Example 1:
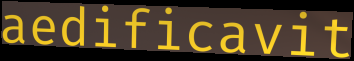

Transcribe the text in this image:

aedificavit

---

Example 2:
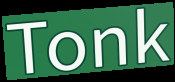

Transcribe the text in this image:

Tonk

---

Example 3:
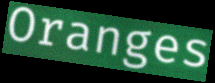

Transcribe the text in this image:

Oranges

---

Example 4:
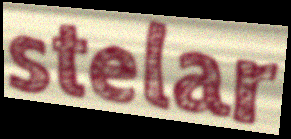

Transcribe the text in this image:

stelar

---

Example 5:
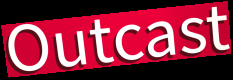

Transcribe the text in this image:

Outcast